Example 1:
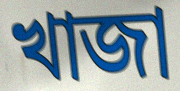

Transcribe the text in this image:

খাজা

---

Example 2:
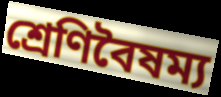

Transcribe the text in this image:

শ্রেণিবৈষম্য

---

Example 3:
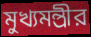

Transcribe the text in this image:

মুখ্যমন্ত্রীর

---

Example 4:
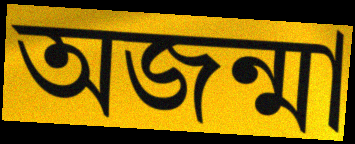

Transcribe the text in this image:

অজন্মা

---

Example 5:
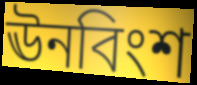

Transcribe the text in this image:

ঊনবিংশ